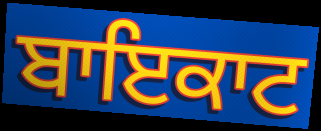
ਬਾਇਕਾਟ